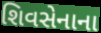
શિવસેનાના